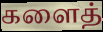
களைத்